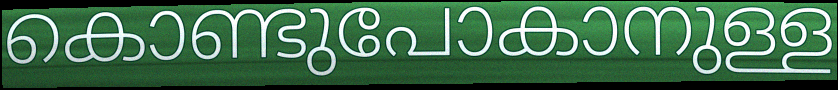
കൊണ്ടുപോകാനുള്ള